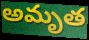
అమృత